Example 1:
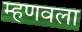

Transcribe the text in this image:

म्हणवला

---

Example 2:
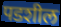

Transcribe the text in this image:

पडशील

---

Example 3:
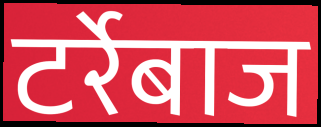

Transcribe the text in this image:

टर्रेबाज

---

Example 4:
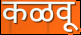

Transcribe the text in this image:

कळवू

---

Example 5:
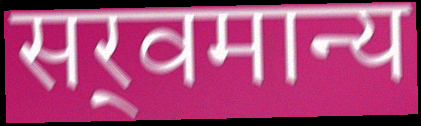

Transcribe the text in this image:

सर्वमान्य